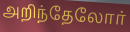
அறிந்தேலோர்